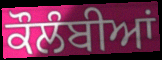
ਕੌਲੰਬੀਆਂ